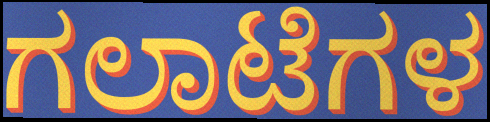
ಗಲಾಟೆಗಳ